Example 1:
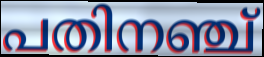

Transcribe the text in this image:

പതിനഞ്ച്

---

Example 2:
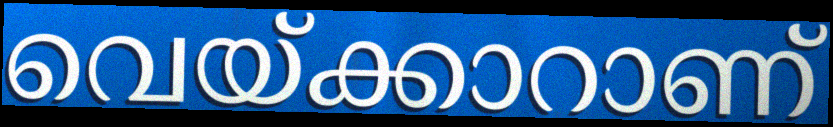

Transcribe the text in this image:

വെയ്ക്കാറാണ്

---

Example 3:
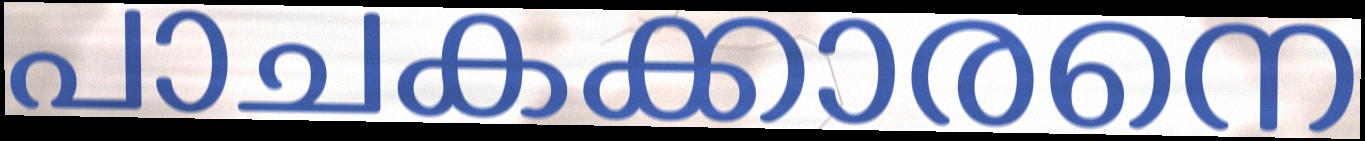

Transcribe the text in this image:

പാചകക്കാരനെ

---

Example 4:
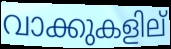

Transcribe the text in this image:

വാക്കുകളില്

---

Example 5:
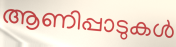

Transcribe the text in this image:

ആണിപ്പാടുകൾ